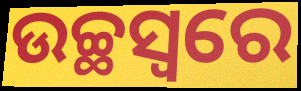
ଉଚ୍ଛସ୍ୱରେ